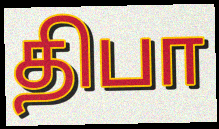
திபா